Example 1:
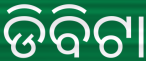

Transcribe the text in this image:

ଡିବିଟା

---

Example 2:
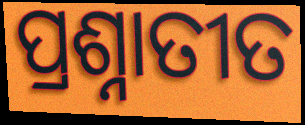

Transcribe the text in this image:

ପ୍ରଶ୍ନାତୀତ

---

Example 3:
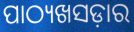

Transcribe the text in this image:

ପାଠ୍ୟଖସଡ଼ାର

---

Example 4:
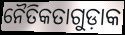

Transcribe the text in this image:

ନୈତିକତାଗୁଡ଼ାକ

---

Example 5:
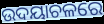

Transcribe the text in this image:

ଉଦୟାଚଳରେ